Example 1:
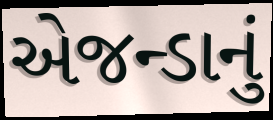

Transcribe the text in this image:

એજન્ડાનું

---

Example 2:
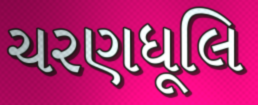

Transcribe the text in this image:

ચરણધૂલિ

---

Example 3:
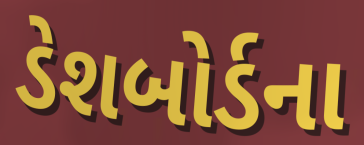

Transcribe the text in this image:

ડેશબોર્ડના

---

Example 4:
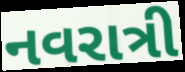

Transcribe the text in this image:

નવરાત્રી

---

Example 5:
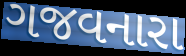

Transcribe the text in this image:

ગજવનારા